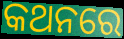
କଥନରେ